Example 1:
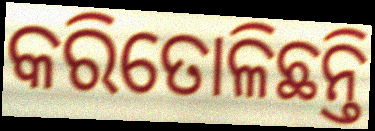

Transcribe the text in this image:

କରିତୋଳିଛନ୍ତି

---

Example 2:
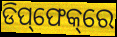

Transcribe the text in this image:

ଡିପ୍‌ଫେକ୍‌ରେ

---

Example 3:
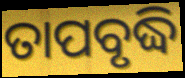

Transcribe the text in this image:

ତାପବୃଦ୍ଧି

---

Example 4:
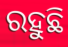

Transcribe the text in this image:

ରହୁଛି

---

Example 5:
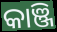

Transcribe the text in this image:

କାଞ୍ଜି